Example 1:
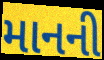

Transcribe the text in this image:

માનની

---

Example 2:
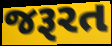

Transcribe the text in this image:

જરૂરત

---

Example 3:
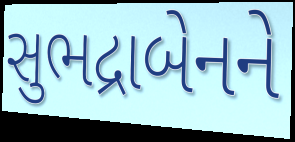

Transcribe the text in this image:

સુભદ્રાબેનને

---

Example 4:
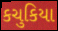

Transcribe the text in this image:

કચુકિયા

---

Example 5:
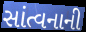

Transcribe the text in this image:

સાંત્વનાની